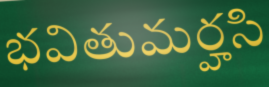
భవితుమర్హసి